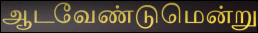
ஆடவேண்டுமென்று